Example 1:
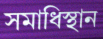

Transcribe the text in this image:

সমাধিস্থান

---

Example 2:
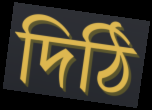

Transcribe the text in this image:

দিঠি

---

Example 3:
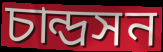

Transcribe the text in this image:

চান্দ্রসন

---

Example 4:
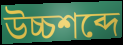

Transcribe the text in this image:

উচ্চশব্দে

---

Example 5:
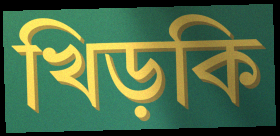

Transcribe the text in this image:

খিড়কি